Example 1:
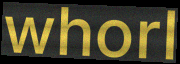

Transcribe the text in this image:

whorl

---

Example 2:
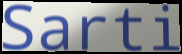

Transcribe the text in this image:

Sarti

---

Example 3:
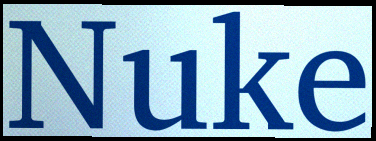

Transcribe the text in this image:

Nuke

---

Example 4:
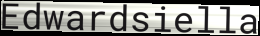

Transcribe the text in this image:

Edwardsiella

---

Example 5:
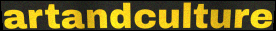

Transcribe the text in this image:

artandculture